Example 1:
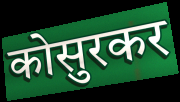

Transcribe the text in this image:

कोसुरकर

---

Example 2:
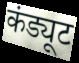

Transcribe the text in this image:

कंड्यूट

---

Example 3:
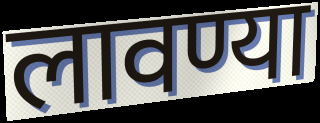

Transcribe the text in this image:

लावण्या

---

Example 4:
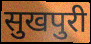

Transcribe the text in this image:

सुखपुरी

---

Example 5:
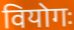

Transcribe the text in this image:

वियोगः